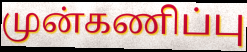
முன்கணிப்பு